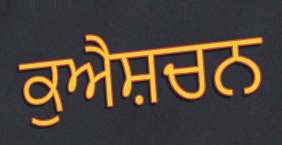
ਕੁਐਸ਼ਚਨ